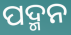
ପଦ୍ମନ